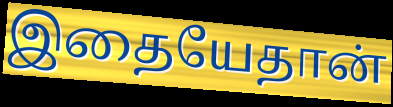
இதையேதான்